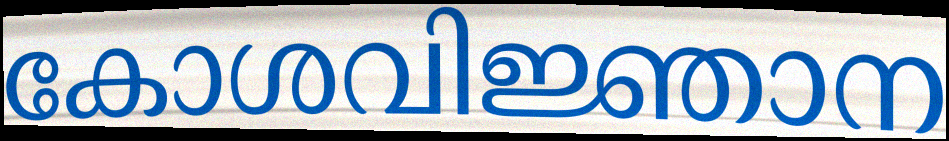
കോശവിജ്ഞാന